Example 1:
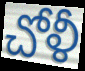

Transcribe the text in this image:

చోళీ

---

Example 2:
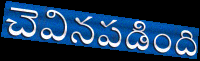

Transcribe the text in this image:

చెవినపడింది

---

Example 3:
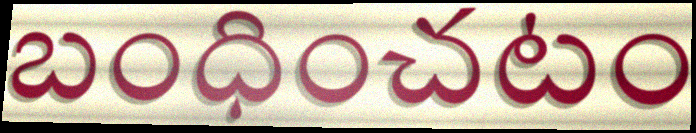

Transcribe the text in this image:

బంధించటం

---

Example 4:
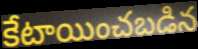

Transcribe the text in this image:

కేటాయించబడిన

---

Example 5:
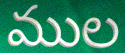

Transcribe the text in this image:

ముల